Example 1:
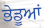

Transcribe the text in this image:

ਭੇਡੂਆਂ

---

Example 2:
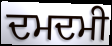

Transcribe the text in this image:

ਦਮਦਮੀ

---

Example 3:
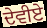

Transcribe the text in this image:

ਦੇਵੀਏ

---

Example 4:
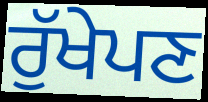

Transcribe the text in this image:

ਰੁੱਖੇਪਣ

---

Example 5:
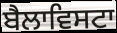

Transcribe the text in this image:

ਬੈਲਾਵਿਸਟਾ